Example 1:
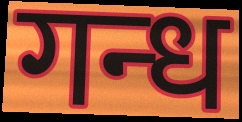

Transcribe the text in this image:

गन्‍ध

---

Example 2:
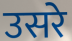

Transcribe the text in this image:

उसरे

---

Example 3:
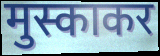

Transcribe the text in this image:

मुस्काकर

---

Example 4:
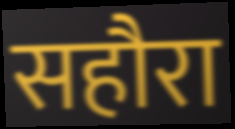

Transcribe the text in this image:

सहौरा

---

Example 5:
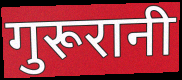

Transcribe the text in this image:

गुरूरानी